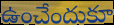
ఉంచేందుకూ